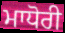
ਮਾਧੋਰੀ